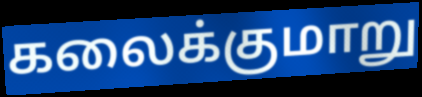
கலைக்குமாறு